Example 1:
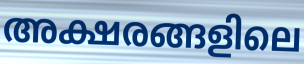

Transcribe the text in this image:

അക്ഷരങ്ങളിലെ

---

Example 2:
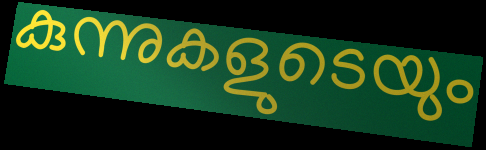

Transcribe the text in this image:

കുന്നുകളുടെയും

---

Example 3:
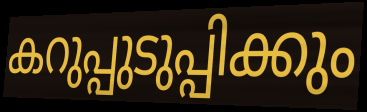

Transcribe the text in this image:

കറുപ്പുടുപ്പിക്കും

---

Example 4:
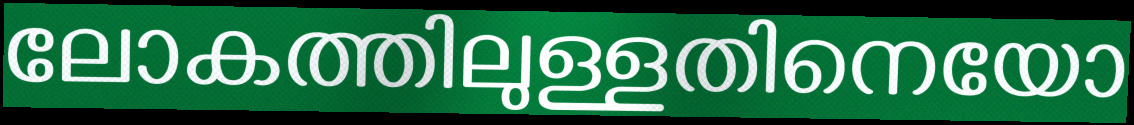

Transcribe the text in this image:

ലോകത്തിലുള്ളതിനെയോ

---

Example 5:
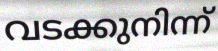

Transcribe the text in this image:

വടക്കുനിന്ന്